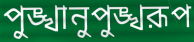
পুঙ্খানুপুঙ্খরূপ